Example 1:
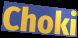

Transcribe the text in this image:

Choki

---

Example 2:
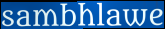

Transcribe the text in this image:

sambhlawe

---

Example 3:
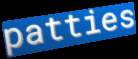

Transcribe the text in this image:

patties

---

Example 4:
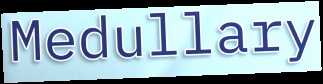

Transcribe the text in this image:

Medullary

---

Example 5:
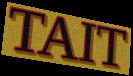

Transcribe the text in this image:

TAIT